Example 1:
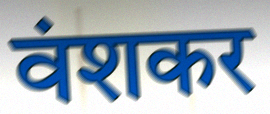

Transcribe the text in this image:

वंशकर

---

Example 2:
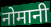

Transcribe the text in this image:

नोमानी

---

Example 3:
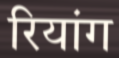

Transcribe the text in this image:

रियांग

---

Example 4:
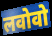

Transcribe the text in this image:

लवोवो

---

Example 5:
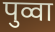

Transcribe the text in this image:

पुव्वा